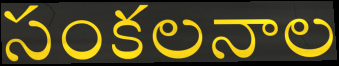
సంకలనాల